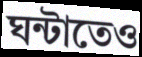
ঘন্টাতেও